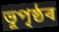
ভূপৃষ্ঠৰ